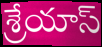
శ్రేయాస్